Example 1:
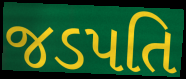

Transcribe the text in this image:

જડપતિ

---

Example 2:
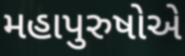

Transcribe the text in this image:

મહાપુરુષોએ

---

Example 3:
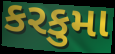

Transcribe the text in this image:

કરકુમા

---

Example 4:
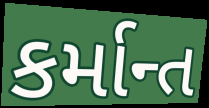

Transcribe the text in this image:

કર્માન્ત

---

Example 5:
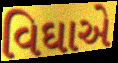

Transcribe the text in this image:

વિઘાએ